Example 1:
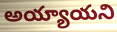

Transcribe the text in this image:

అయ్యాయని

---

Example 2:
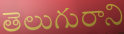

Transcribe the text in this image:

తెలుగురాని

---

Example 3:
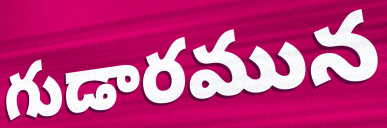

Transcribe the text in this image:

గుడారమున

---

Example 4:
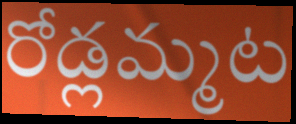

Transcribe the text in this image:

రోడ్లమ్మట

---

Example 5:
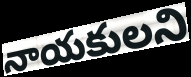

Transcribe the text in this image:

నాయకులని